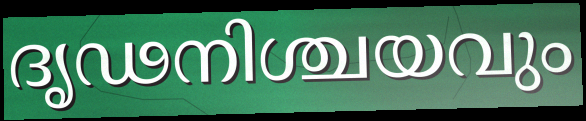
ദൃഢനിശ്ചയവും